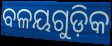
ବଳୟଗୁଡ଼ିକ